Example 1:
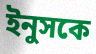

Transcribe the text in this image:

ইনুসকে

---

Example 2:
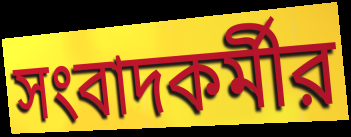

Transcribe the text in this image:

সংবাদকর্মীর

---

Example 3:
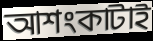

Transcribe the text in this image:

আশংকাটাই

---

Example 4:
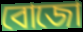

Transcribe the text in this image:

বোজো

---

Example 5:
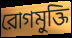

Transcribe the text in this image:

রোগমুক্তি